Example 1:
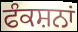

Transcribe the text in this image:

ਫੰਕਸ਼ਨਾਂ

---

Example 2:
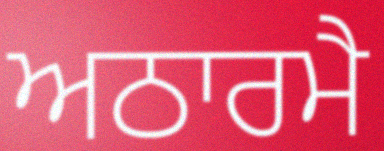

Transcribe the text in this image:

ਅਠਾਰਮੈ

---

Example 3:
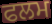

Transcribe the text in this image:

ਫਲਮ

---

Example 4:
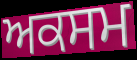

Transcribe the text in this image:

ਅਕਸਮ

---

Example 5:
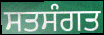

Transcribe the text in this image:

ਸਤਸੰਗਤ